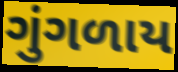
ગુંગળાય